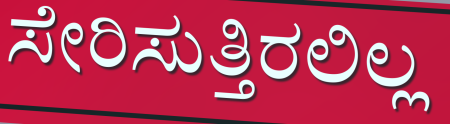
ಸೇರಿಸುತ್ತಿರಲಿಲ್ಲ